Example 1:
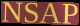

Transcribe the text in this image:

NSAP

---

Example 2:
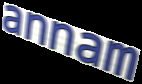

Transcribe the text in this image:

annam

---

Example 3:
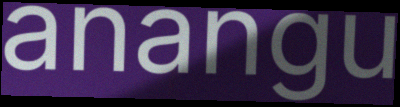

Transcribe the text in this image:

anangu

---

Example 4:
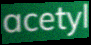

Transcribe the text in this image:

acetyl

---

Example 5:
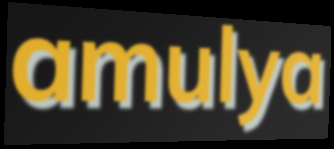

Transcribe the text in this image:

amulya